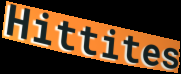
Hittites